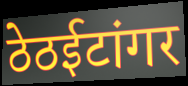
ठेठईटांगर